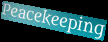
Peacekeeping